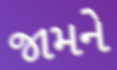
જામને